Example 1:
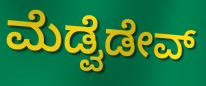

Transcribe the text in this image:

ಮೆಡ್ವೆಡೇವ್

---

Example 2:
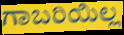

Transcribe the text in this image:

ಗಾಬರಿಯಿಲ್ಲ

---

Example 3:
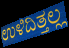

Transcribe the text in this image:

ಉಳಿದಿತ್ತಲ್ಲ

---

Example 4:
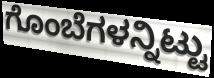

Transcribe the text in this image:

ಗೊಂಬೆಗಳನ್ನಿಟ್ಟು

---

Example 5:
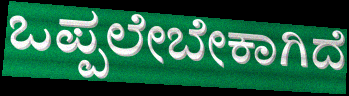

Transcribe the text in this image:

ಒಪ್ಪಲೇಬೇಕಾಗಿದೆ